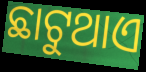
ଛାଟୁଥାଏ